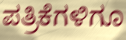
ಪತ್ರಿಕೆಗಳಿಗೂ